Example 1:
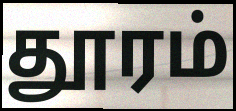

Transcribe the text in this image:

தூரம்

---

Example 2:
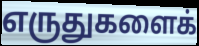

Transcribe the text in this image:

எருதுகளைக்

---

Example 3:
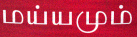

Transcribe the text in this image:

மய்யமும்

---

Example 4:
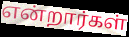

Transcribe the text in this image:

என்றார்கள்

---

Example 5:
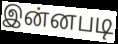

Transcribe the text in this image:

இன்னபடி